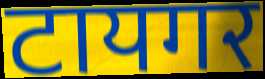
टायगर